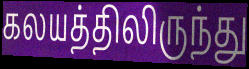
கலயத்திலிருந்து